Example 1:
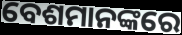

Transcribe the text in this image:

ବେଶମାନଙ୍କରେ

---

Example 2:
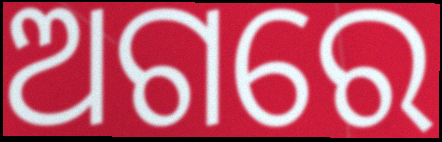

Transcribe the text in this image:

ଅଗରେ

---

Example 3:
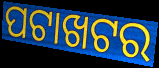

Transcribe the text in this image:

ପଟାଖଟର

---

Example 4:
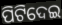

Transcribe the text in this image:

ପିଟିଦେଇ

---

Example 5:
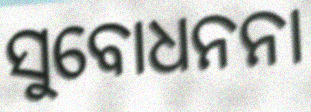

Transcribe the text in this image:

ସୁବୋଧନନା